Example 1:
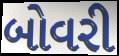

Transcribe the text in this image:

બોવરી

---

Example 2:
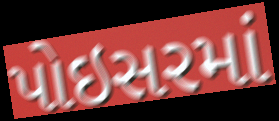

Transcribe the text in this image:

પોઇસરમાં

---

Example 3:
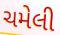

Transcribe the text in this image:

ચમેલી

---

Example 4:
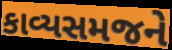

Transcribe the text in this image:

કાવ્યસમજને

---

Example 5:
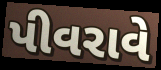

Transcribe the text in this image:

પીવરાવે